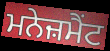
ਮਨੇਜ਼ਮੈਂਟ